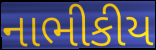
નાભીકીય